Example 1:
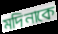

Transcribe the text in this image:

মদিনাকে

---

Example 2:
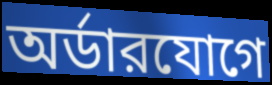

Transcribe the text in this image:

অর্ডারযোগে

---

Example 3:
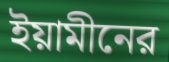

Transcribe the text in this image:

ইয়ামীনের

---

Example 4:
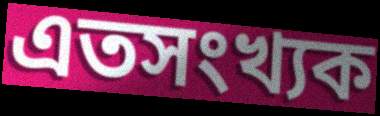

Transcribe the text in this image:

এতসংখ্যক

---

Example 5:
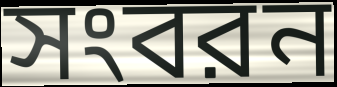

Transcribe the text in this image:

সংবরন